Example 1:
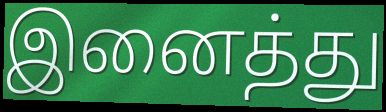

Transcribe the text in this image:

இனைத்து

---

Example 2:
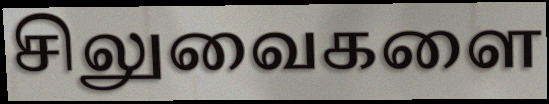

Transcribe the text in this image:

சிலுவைகளை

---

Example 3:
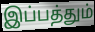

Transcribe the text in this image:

இப்பத்தும்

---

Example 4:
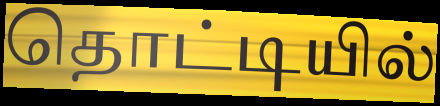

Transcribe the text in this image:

தொட்டியில்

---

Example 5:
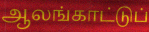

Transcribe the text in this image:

ஆலங்காட்டுப்